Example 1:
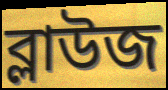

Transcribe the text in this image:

ব্লাউজ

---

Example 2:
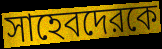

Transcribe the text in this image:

সাহেবদেরকে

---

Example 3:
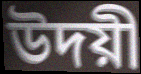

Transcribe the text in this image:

উদয়ী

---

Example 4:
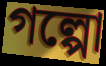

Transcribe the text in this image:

গল্পো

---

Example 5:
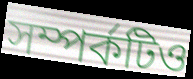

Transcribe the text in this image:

সম্পর্কটিও